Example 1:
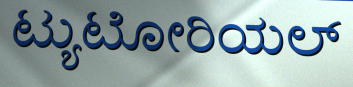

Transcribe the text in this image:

ಟ್ಯುಟೋರಿಯಲ್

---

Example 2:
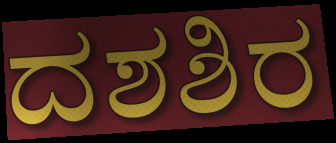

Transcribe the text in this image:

ದಶಶಿರ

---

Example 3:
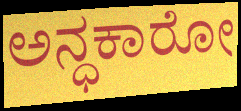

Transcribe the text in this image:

ಅನ್ಧಕಾರೋ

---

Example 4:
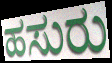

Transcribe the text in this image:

ಹಸುರು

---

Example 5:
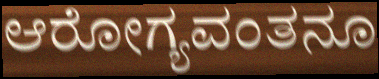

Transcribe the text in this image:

ಆರೋಗ್ಯವಂತನೂ